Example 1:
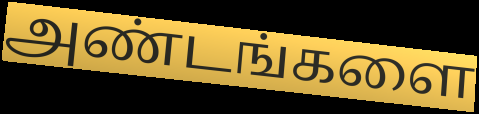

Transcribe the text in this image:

அண்டங்களை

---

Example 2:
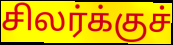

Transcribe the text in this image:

சிலர்க்குச்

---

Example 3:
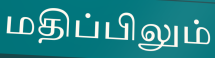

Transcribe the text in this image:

மதிப்பிலும்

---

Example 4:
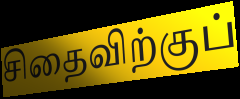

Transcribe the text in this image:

சிதைவிற்குப்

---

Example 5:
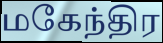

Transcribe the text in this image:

மகேந்திர